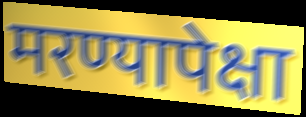
मरण्यापेक्षा